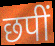
छपीं